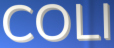
COLI